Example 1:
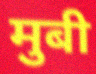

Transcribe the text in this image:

मुबी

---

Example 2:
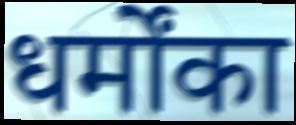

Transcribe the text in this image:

धर्मोंका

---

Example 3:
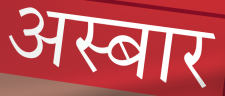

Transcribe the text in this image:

अस्बार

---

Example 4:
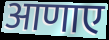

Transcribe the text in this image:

आणाए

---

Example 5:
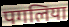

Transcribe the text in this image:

पगलिया